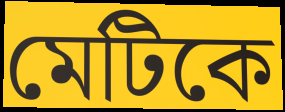
মেটিকে